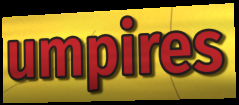
umpires